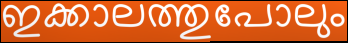
ഇക്കാലത്തുപോലും